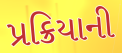
પ્રક્રિયાની